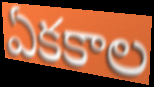
ఏకకాల